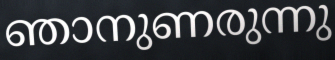
ഞാനുണരുന്നു